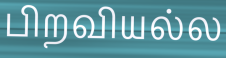
பிறவியல்ல